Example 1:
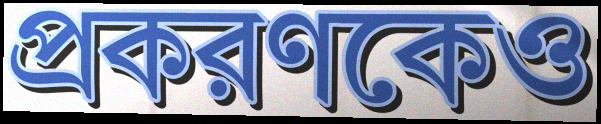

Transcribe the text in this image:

প্রকরণকেও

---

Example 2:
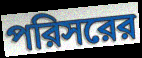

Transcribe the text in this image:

পরিসরের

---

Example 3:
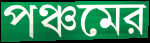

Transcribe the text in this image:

পঞ্চমের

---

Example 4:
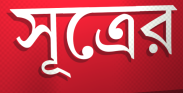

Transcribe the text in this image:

সূত্রের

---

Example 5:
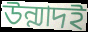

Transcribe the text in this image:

উন্মাদই